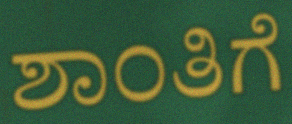
ಶಾಂತಿಗೆ